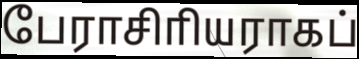
பேராசிரியராகப்